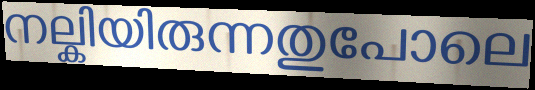
നല്കിയിരുന്നതുപോലെ